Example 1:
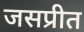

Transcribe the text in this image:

जसप्रीत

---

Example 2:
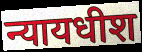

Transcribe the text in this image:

न्यायधीश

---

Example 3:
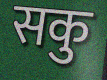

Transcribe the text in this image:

सकु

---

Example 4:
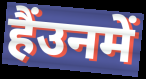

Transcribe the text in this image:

हैंउनमें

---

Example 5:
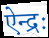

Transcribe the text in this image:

ऐन्द्रः